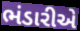
ભંડારીએ